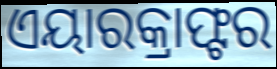
ଏୟାରକ୍ରାଫ୍ଟର